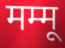
मम्मू